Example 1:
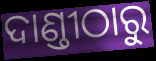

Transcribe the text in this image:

ଦାଣ୍ଡୀଠାରୁ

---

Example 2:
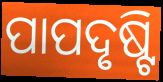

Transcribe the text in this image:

ପାପଦୃଷ୍ଟି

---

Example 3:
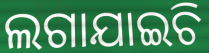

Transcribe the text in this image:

ଲଗାଯାଇଚି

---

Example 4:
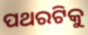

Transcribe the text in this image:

ପଥରଟିକୁ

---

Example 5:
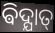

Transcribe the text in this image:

ଵିଦ୍ଯାତ୍